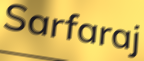
Sarfaraj